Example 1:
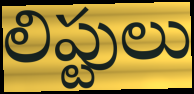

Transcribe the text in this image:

లిప్టులు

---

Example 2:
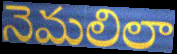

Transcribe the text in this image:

నెమలిలా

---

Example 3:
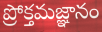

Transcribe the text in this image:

ప్రోక్తమజ్ఞానం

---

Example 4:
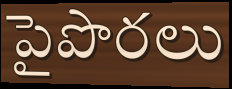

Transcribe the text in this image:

పైపొరలు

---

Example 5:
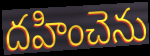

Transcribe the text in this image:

దహించెను